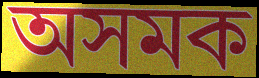
অসমক